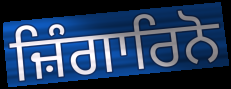
ਜ਼ਿੰਗਾਰਿਨੋ